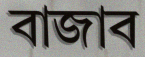
বাজাব